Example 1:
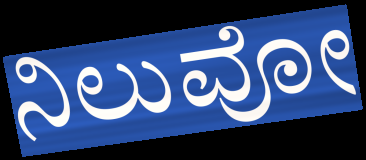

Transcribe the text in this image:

ನಿಲುವೋ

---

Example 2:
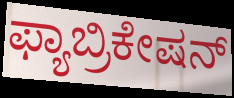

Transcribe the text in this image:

ಫ್ಯಾಬ್ರಿಕೇಷನ್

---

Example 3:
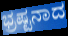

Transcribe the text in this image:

ಭ್ರಷ್ಟನಾದ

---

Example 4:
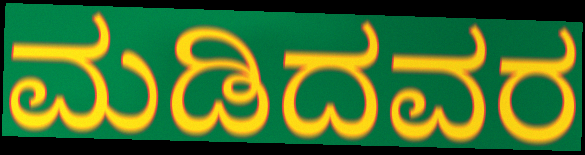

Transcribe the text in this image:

ಮಡಿದವರ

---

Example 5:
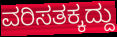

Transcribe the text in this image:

ವರಿಸತಕ್ಕದ್ದು